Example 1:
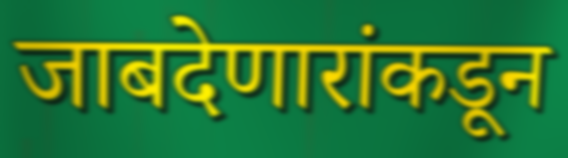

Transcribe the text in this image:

जाबदेणारांकडून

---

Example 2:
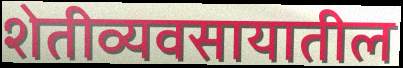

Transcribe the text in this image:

शेतीव्यवसायातील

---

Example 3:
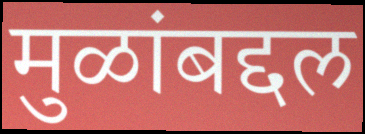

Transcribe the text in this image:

मुळांबद्दल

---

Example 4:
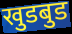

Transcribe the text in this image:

खुडबुड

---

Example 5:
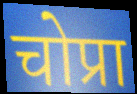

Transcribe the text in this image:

चोप्रा